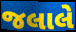
જલાલે